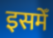
इसमेँ